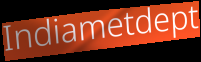
Indiametdept